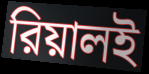
রিয়ালই